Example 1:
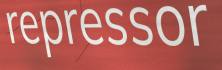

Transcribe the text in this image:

repressor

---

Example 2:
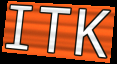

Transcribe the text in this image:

ITK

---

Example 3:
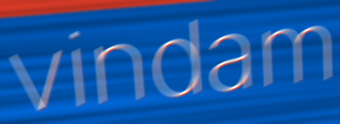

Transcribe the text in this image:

vindam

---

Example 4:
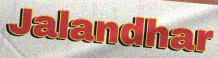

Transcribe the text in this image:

Jalandhar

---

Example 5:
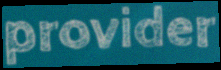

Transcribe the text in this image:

provider